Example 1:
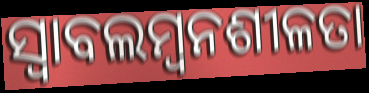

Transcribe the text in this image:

ସ୍ୱାବଲମ୍ବନଶୀଳତା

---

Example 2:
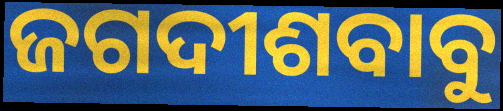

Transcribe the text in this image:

ଜଗଦୀଶବାବୁ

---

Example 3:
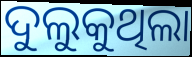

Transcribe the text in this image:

ଦୁଲୁକୁଥିଲା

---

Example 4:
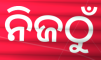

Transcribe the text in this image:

ନିଜଠୁଁ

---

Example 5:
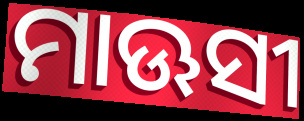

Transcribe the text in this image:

ମାଊସୀ